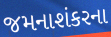
જમનાશંકરના